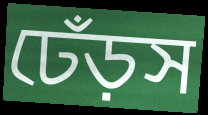
ঢেঁড়স